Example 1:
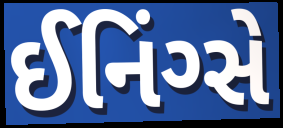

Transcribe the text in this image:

ઈનિંગ્સે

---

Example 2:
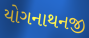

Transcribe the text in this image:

યોગનાથનજી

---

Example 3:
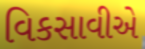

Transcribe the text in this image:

વિકસાવીએ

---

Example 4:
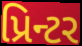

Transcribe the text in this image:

પ્રિન્ટર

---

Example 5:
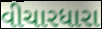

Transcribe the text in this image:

વીચારધારા